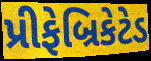
પ્રીફેબ્રિકેટેડ